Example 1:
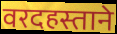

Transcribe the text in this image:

वरदहस्ताने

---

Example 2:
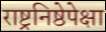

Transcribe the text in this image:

राष्ट्रनिष्ठेपेक्षा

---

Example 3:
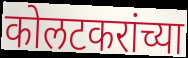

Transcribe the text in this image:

कोलटकरांच्या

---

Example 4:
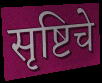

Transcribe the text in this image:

सृष्टिचे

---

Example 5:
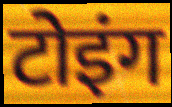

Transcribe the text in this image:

टोइंग